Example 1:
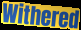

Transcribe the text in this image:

Withered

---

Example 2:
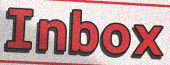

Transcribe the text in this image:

Inbox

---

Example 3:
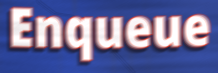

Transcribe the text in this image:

Enqueue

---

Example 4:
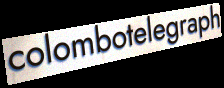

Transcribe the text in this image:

colombotelegraph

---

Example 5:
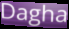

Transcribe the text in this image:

Dagha